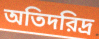
অতিদরিদ্র